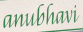
anubhavi